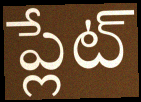
ప్లేట్